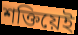
শক্তিয়েই